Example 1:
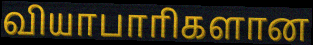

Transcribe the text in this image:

வியாபாரிகளான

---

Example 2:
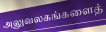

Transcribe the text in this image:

அலுவலகங்களைத்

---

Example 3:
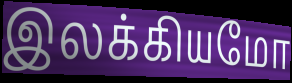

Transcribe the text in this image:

இலக்கியமோ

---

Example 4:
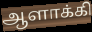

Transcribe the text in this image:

ஆளாக்கி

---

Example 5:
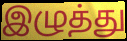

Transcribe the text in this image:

இழுத்து